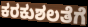
ಕರಕುಶಲತೆಗೆ